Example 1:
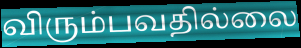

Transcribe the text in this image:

விரும்பவதில்லை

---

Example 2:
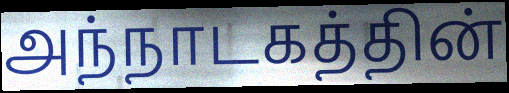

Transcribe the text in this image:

அந்நாடகத்தின்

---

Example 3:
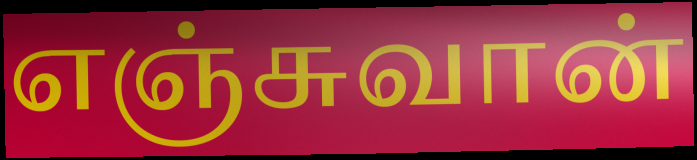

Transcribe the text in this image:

எஞ்சுவான்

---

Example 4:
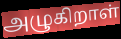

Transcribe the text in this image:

அழுகிறாள்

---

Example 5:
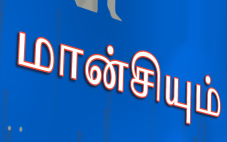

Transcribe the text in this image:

மான்சியும்